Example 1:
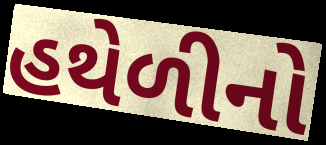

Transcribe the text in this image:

હથેળીનો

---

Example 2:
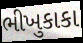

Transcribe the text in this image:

ભીખુકાકા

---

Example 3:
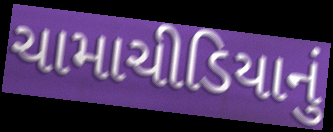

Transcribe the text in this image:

ચામાચીડિયાનું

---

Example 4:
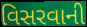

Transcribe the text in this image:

વિસરવાની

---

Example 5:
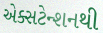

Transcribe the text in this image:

એક્સટેન્શનથી